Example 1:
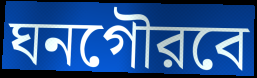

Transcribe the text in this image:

ঘনগৌরবে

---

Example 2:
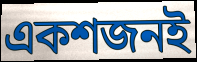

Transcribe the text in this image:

একশজনই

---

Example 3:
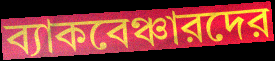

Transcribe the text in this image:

ব্যাকবেঞ্চারদের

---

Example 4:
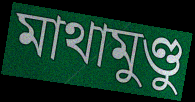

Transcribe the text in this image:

মাথামুণ্ডু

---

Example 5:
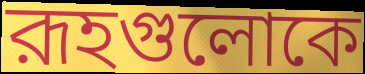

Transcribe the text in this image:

রূহগুলোকে